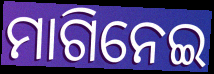
ମାଗିନେଇ